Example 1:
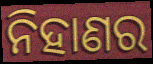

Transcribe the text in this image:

ନିହାଣର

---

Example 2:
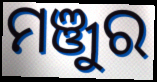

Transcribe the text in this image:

ମଞ୍ଜୁର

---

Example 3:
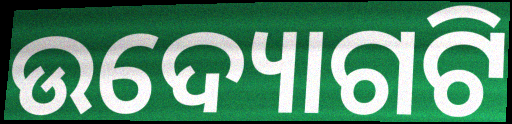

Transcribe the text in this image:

ଉଦ୍ୟୋଗଟି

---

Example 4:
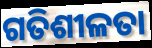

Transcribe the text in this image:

ଗତିଶୀଳତା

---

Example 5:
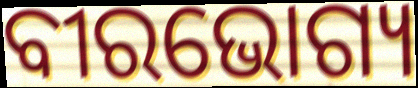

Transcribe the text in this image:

ବୀରଭୋଗ୍ୟ